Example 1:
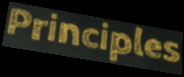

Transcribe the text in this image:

Principles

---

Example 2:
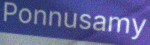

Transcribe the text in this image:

Ponnusamy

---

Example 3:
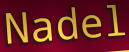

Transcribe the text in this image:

Nadel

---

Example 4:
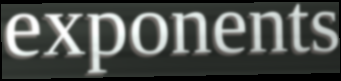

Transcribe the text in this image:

exponents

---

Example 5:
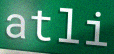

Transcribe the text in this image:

atli